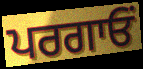
ਪਰਗਾਓਂ